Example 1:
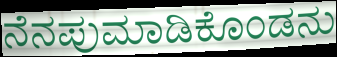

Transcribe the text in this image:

ನೆನಪುಮಾಡಿಕೊಂಡನು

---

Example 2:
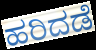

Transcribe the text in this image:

ಹರಿದಡೆ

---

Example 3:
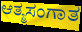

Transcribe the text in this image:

ಆತ್ಮಸಂಗಾತ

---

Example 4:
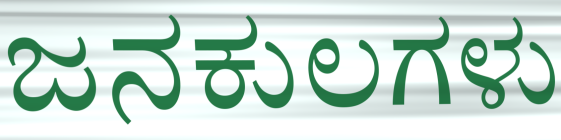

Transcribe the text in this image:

ಜನಕುಲಗಳು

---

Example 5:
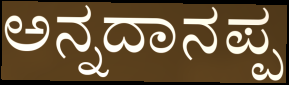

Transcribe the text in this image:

ಅನ್ನದಾನಪ್ಪ